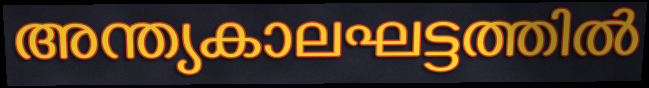
അന്ത്യകാലഘട്ടത്തിൽ